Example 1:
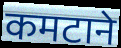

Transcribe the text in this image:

कमटाने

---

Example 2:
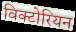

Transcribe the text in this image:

विक्टोरियन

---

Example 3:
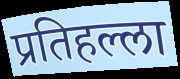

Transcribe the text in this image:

प्रतिहल्ला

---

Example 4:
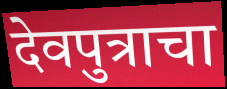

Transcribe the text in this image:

देवपुत्राचा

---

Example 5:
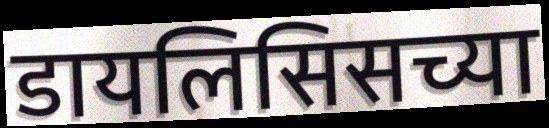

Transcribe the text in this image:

डायलिसिसच्या